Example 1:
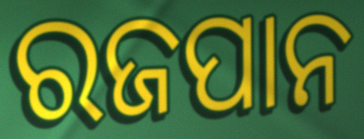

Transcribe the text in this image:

ରଜପାନ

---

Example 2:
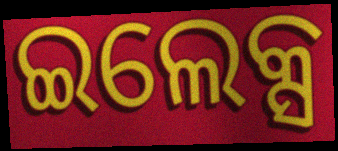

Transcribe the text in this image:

ଇଲେକ୍ସ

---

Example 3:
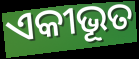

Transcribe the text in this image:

ଏକୀଭୂତ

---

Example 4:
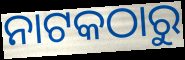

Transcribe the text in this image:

ନାଟକଠାରୁ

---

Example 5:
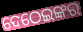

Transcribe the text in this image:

ଦେଠେଇଙ୍କର